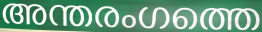
അന്തരംഗത്തെ